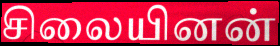
சிலையினன்